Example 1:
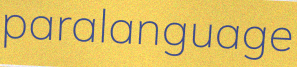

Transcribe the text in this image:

paralanguage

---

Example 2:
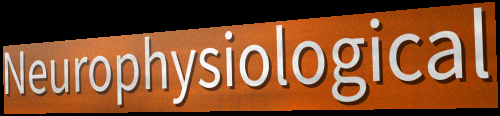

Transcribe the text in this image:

Neurophysiological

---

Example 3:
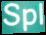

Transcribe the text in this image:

Spl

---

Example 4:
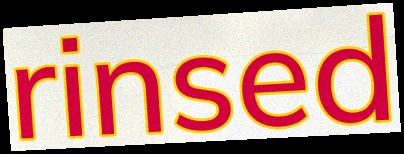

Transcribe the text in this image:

rinsed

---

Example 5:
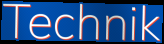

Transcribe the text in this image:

Technik